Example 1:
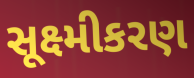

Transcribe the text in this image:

સૂક્ષ્મીકરણ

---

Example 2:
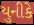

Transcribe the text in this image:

યુનીકે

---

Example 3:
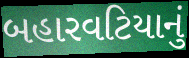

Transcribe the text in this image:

બહારવટિયાનું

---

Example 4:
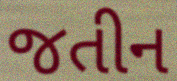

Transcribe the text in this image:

જતીન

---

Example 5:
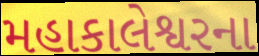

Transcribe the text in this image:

મહાકાલેશ્વરના